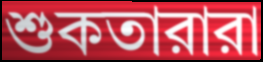
শুকতারারা